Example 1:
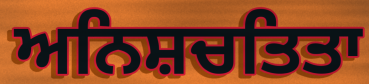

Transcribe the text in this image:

ਅਨਿਸ਼ਚਤਿਤਾ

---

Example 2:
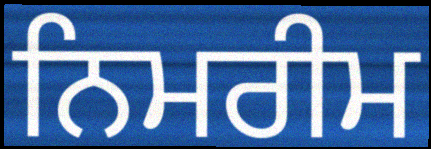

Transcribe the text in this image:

ਨਿਮਰੀਮ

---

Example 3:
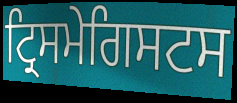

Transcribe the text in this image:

ਟ੍ਰਿਸਮੇਗਿਸਟਸ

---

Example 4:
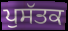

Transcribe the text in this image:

ਪੁਸੱਤਕ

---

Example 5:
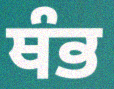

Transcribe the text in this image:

ਥੰਭ